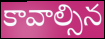
కావాల్సిన